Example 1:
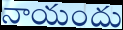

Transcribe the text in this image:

నాయందు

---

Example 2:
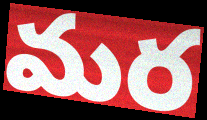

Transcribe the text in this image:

మర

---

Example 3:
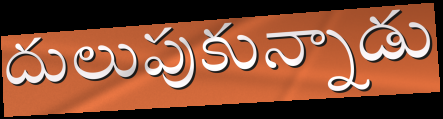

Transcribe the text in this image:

దులుపుకున్నాడు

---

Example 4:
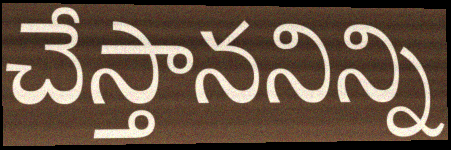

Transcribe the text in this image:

చేస్తాననిన్ని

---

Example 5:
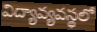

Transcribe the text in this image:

విద్యావ్యవస్థలో